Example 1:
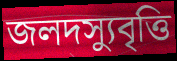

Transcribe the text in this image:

জলদস্যুবৃত্তি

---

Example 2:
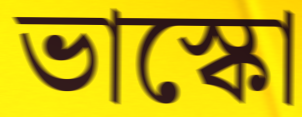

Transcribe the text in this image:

ভাস্কো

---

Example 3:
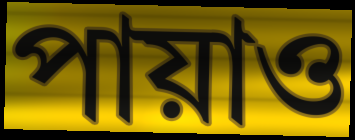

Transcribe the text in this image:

পায়াও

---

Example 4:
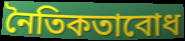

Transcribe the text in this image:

নৈতিকতাবোধ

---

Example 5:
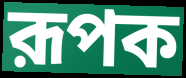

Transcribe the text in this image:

রূপক